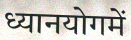
ध्यानयोगमें